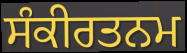
ਸੰਕੀਰਤਨਮ